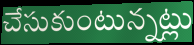
చేసుకుంటున్నట్లు